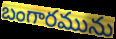
బంగారమును